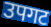
उपगट